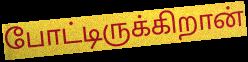
போட்டிருக்கிறான்